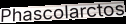
Phascolarctos